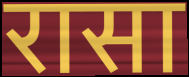
रासा